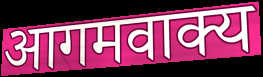
आगमवाक्य